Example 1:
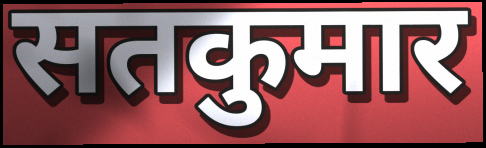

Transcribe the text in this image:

सतकुमार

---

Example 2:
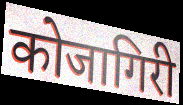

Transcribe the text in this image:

कोजागिरी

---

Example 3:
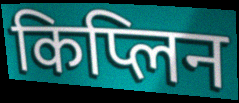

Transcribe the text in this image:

किप्लिन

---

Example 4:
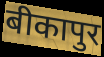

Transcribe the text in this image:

बीकापुर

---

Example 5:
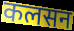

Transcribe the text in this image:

कलसन